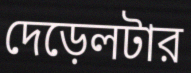
দেড়েলটার